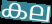
കല